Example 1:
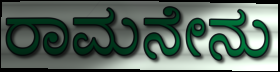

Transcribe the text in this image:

ರಾಮನೇನು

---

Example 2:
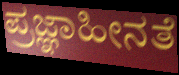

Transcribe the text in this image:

ಪ್ರಜ್ಞಾಹೀನತೆ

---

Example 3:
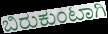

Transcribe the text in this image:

ಬಿರುಕುಂಟಾಗಿ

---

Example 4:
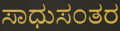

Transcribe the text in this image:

ಸಾಧುಸಂತರ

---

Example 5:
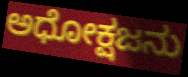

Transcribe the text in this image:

ಅಧೋಕ್ಷಜನು